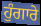
ਹੁੰਗਾਰੇ